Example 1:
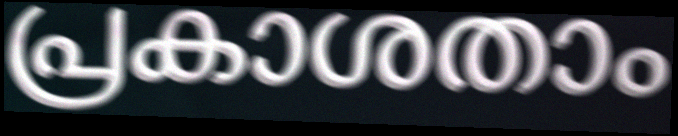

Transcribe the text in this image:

പ്രകാശതാം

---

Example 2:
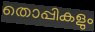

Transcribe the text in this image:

തൊപ്പികളും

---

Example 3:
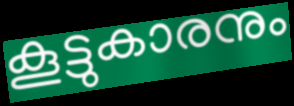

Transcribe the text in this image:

കൂട്ടുകാരനും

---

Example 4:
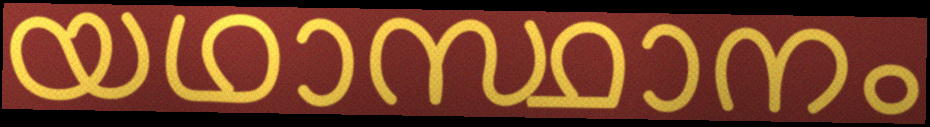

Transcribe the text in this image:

യഥാസ്ഥാനം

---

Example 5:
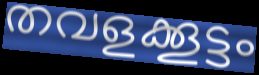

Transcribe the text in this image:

തവളക്കൂട്ടം